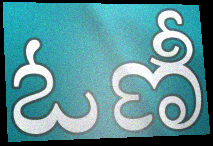
ఓణీ